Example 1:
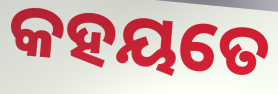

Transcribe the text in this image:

କହୟତେ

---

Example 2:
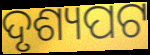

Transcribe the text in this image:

ଦୃଶ୍ୟପଟ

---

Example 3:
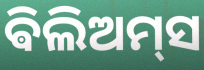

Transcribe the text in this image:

ଵିଲିଅମ୍‌ସ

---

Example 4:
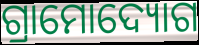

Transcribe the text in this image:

ଗ୍ରାମୋଦ୍ୟୋଗ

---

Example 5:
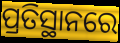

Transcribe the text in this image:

ପ୍ରତିସ୍ଥାନରେ